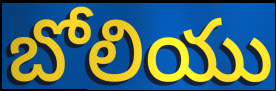
బోలియు